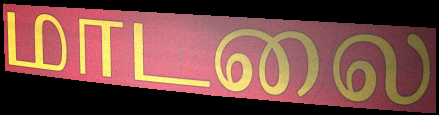
மாடலை